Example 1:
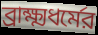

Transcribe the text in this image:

ব্রাক্ষ্মধর্মের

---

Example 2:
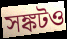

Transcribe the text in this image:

সঙ্কটও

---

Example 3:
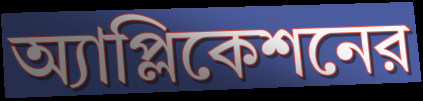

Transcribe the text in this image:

অ্যাপ্লিকেশনের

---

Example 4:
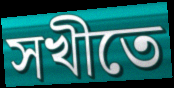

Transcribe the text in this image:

সখীতে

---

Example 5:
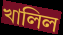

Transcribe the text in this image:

খালিল